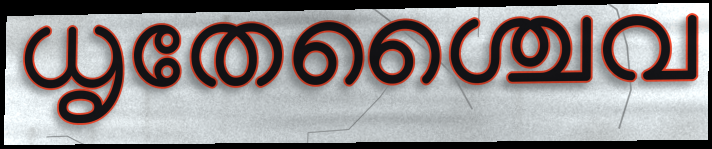
ധൃതേശ്ചൈവ